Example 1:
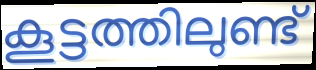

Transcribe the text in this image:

കൂട്ടത്തിലുണ്ട്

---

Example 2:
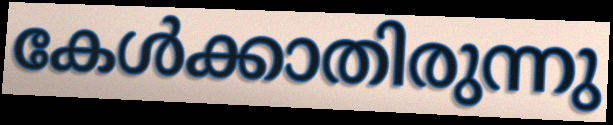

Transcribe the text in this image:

കേൾക്കാതിരുന്നു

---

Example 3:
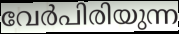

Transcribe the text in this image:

വേർപിരിയുന്ന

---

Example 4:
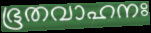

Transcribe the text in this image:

ഭൂതവാഹനഃ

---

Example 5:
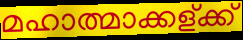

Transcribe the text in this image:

മഹാത്മാക്കള്ക്ക്